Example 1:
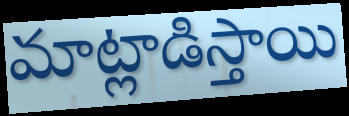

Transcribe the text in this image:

మాట్లాడిస్తాయి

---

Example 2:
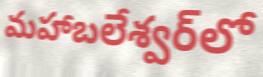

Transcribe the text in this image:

మహాబలేశ్వర్‌లో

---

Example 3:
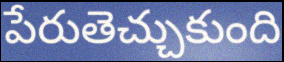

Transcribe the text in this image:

పేరుతెచ్చుకుంది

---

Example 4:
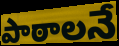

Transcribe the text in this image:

పాఠాలనే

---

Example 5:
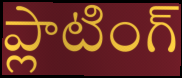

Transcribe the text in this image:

ప్లాటింగ్